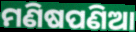
ମଣିଷପଣିଆ